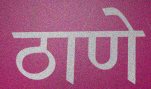
ठाणे